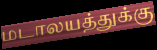
மடாலயத்துக்கு